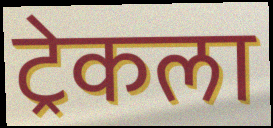
ट्रेकला